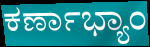
ಕರ್ಣಾಭ್ಯಾಂ